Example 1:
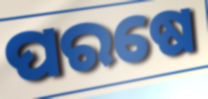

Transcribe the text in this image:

ପରଷେ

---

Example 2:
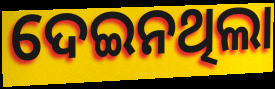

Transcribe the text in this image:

ଦେଇନଥିଲା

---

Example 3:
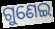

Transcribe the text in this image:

ଗୁଣେଇ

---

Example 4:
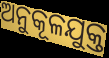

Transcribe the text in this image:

ଅନୁକୂଳଯୁକ୍ତ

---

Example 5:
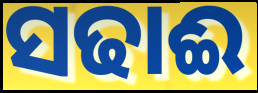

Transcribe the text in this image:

ସଢାଈ